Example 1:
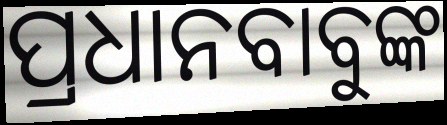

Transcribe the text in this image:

ପ୍ରଧାନବାବୁଙ୍କ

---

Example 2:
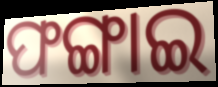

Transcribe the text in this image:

ଫଙ୍ଗାଇ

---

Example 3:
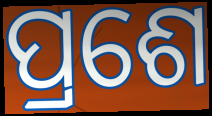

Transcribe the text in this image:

ପ୍ରଶେ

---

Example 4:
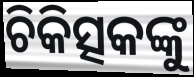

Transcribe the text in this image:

ଚିକିତ୍ସକଙ୍କୁ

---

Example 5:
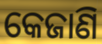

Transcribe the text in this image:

କେଜାଣି